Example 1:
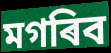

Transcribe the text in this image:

মগৰিব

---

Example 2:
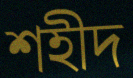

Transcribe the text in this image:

শহীদ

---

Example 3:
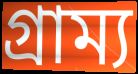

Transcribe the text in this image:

গ্ৰাম্য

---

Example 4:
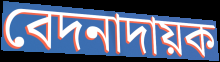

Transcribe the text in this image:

বেদনাদায়ক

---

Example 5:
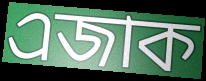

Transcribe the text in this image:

এজাক